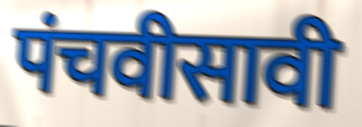
पंचवीसावी